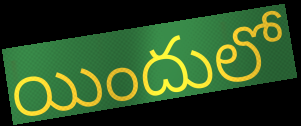
యిందులో